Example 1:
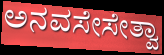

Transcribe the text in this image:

ಅನವಸೇಸೇತ್ವಾ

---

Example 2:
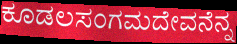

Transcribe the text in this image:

ಕೂಡಲಸಂಗಮದೇವನೆನ್ನ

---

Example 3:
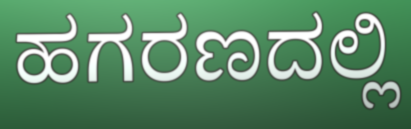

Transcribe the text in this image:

ಹಗರಣದಲ್ಲಿ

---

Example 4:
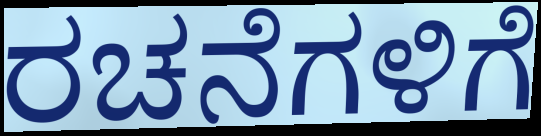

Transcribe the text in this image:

ರಚನೆಗಳಿಗೆ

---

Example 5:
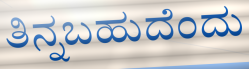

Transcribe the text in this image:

ತಿನ್ನಬಹುದೆಂದು